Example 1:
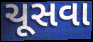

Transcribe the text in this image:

ચૂસવા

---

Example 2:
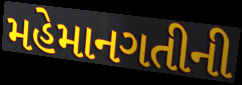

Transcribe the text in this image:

મહેમાનગતીની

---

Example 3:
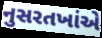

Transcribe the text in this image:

નુસરતખાંએ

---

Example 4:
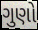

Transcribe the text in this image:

ગુણો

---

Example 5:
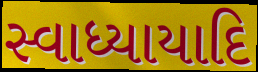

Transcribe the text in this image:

સ્વાધ્યાયાદિ